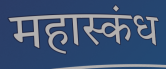
महास्कंध